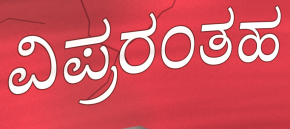
ವಿಪ್ರರಂತಹ